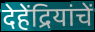
देहेंद्रियांचें